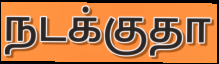
நடக்குதா